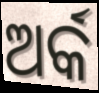
ଅର୍କ